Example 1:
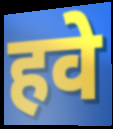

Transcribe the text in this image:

हवे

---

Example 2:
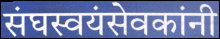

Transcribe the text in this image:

संघस्वयंसेवकांनी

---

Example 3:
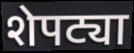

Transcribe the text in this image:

शेपट्या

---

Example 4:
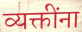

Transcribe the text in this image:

व्यक्तींना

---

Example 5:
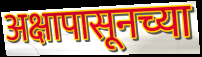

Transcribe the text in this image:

अक्षापासूनच्या